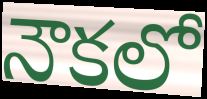
నౌకలో